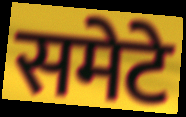
समेटे